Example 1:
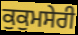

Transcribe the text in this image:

ਕੁਕੁਮਸੇਰੀ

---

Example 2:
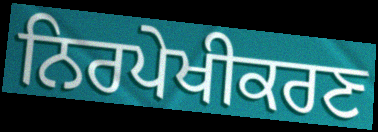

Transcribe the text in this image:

ਨਿਰਪੇਖੀਕਰਣ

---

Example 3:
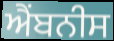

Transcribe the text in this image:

ਐਂਬਨੀਸ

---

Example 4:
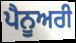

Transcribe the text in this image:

ਪੈਨੂਅਰੀ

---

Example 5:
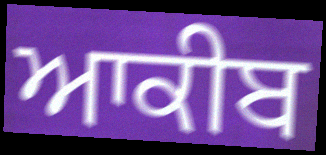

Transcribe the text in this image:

ਆਕੀਬ